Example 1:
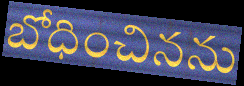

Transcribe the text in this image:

బోధించినను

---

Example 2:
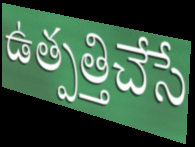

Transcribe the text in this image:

ఉత్పత్తిచేసే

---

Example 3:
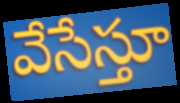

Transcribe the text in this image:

వేసేస్తూ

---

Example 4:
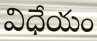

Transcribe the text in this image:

విధేయం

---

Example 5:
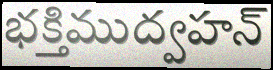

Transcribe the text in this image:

భక్తిముద్వహన్